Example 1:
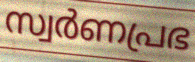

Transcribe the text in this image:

സ്വർണപ്രഭ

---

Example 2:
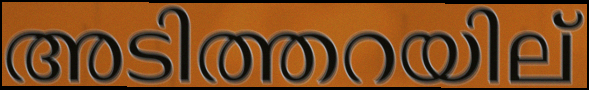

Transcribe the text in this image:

അടിത്തറയില്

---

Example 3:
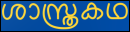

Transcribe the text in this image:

ശാസ്ത്രകഥ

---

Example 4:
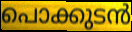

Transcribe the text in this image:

പൊക്കുടൻ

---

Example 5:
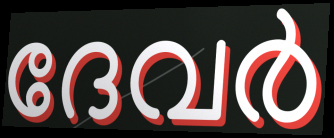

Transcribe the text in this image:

ദേവർ